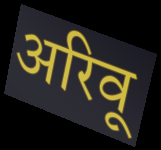
अरिवू